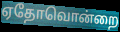
ஏதோவொன்றை